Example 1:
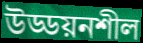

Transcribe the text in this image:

উড্ডয়নশীল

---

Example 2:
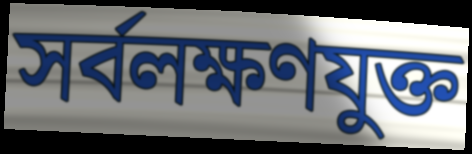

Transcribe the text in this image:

সর্বলক্ষণযুক্ত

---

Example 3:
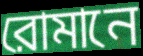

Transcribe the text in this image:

রোমানে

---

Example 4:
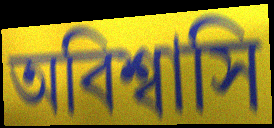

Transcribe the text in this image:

অবিশ্বাসি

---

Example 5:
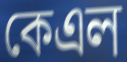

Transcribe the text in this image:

কেএল